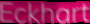
Eckhart